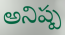
అనిష్ప